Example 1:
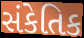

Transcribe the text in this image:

સંકેતિક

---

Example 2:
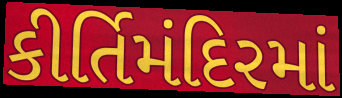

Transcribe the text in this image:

કીર્તિમંદિરમાં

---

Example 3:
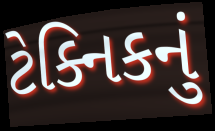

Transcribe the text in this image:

ટેક્નિકનું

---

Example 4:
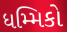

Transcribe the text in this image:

ધમ્મિકો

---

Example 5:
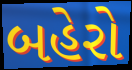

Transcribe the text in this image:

બહેરો